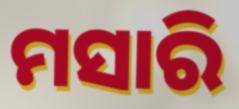
ମସାରି